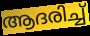
ആദരിച്ച്